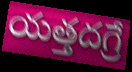
యత్తదగ్రే